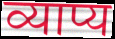
व्याप्य